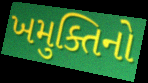
ખમુક્તિનો